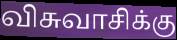
விசுவாசிக்கு